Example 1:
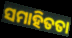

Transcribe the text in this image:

ସମାହିତତା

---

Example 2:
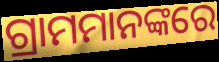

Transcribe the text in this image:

ଗ୍ରାମମାନଙ୍କରେ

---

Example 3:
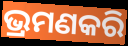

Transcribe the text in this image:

ଭ୍ରମଣକରି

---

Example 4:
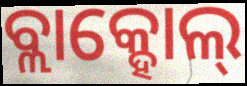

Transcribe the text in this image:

ବ୍ଲାକ୍ହୋଲ୍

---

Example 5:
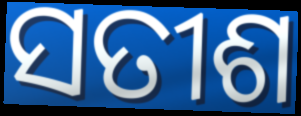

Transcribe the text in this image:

ସତୀଶ